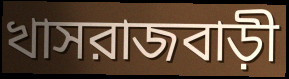
খাসরাজবাড়ী